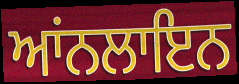
ਆਂਨਲਾਇਨ